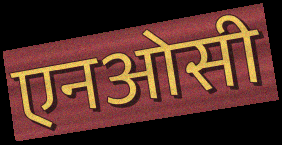
एनओसी